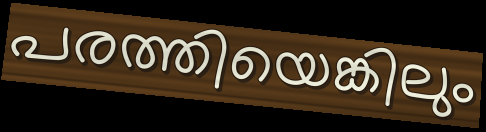
പരത്തിയെങ്കിലും